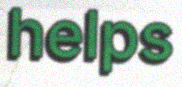
helps